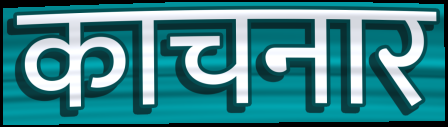
काचनार